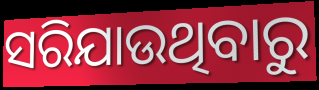
ସରିଯାଉଥିବାରୁ